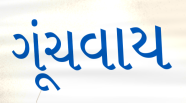
ગૂંચવાય